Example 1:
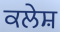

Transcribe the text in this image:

ਕਲੇਸ਼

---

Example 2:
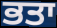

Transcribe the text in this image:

ਭਤਾ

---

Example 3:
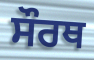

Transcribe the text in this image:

ਸੌਰਥ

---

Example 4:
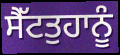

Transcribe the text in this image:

ਸੈੱਟਤੁਹਾਨੂੰ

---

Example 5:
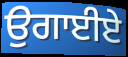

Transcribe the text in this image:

ਉਗਾਈਏ